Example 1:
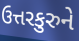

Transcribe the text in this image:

ઉત્તરકુરુને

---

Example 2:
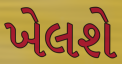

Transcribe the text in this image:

ખેલશે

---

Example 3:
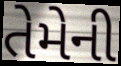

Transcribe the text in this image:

તેમેની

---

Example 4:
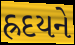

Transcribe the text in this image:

હ્રદયને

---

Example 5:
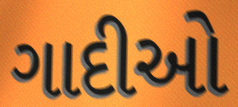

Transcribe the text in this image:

ગાદીઓ